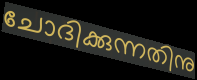
ചോദിക്കുന്നതിനു